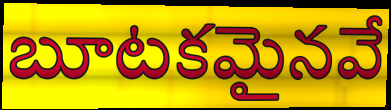
బూటకమైనవే